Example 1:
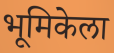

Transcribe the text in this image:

भूमिकेला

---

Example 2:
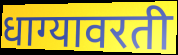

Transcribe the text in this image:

धाग्यावरती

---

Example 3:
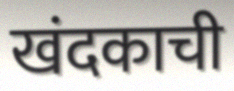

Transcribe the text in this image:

खंदकाची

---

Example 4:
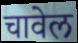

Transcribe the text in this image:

चावेल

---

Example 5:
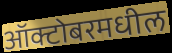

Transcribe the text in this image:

ऑक्टोबरमधील